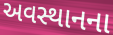
અવસ્થાનના